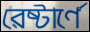
ৱেষ্টাৰ্ণে